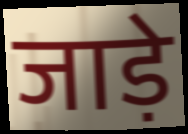
जाड़े